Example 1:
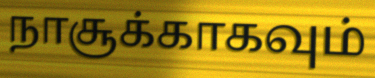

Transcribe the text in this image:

நாசூக்காகவும்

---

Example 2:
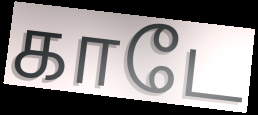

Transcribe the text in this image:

காடே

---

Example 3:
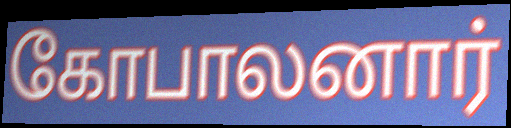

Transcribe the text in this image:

கோபாலனார்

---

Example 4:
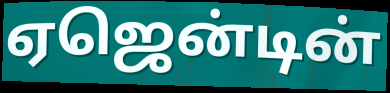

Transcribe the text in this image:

ஏஜென்டின்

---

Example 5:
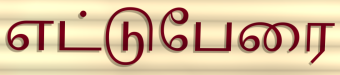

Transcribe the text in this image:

எட்டுபேரை